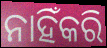
ନାହିଁକରି